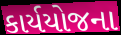
કાર્યયોજના